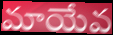
మాయేవ